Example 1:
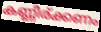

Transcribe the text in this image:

കണ്ണീര്ക്കണം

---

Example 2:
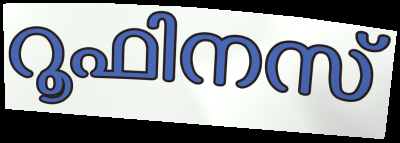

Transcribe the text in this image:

റൂഫിനസ്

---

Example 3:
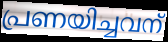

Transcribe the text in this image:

പ്രണയിച്ചവന്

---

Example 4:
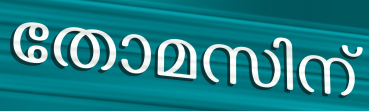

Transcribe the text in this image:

തോമസിന്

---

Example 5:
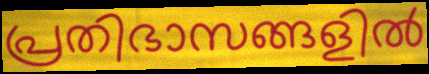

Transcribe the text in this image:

പ്രതിഭാസങ്ങളിൽ